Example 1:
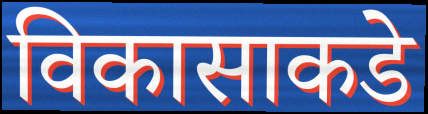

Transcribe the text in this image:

विकासाकडे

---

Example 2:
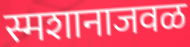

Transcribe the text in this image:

स्मशानाजवळ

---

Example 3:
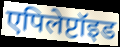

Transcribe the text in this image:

एपिलेप्टॉइड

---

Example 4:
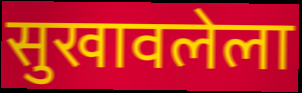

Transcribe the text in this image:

सुखावलेला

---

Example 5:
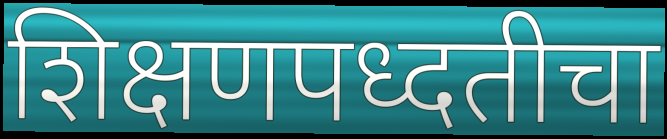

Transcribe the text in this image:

शिक्षणपध्दतीचा